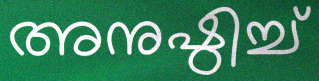
അനുഷ്ഠിച്ച്